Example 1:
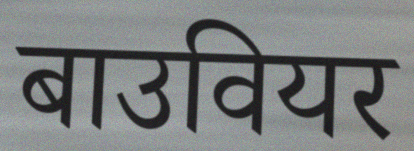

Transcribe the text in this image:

बाउवियर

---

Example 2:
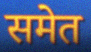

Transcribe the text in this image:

समेत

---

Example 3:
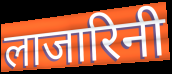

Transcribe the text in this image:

लाजारिनी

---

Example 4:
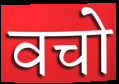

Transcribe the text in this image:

वचो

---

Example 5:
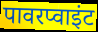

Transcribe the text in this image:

पावरप्वाइंट